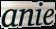
anie